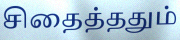
சிதைத்ததும்